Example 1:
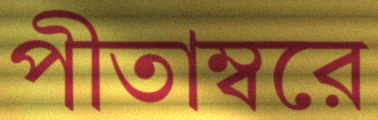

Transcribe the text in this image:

পীতাম্বরে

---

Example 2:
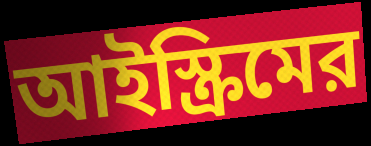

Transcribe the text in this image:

আইস্ক্রিমের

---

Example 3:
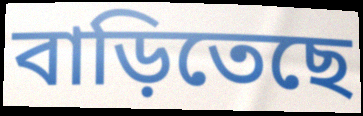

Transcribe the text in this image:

বাড়িতেছে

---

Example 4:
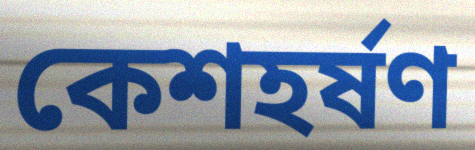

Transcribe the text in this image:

কেশহর্ষণ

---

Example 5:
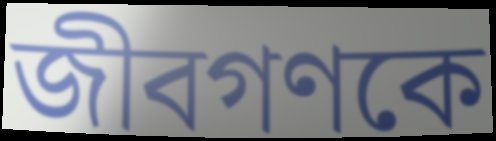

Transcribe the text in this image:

জীবগণকে